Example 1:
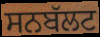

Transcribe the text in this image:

ਸਨਬੱਲਟ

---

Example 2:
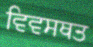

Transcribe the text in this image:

ਵਿਵਸਥਤ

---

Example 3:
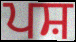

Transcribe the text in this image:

ਪਸ਼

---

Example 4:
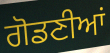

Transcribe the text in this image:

ਗੋਡਣੀਆਂ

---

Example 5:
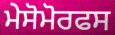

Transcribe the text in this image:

ਮੇਸੋਮੋਰਫਸ